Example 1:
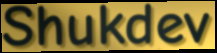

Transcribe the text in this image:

Shukdev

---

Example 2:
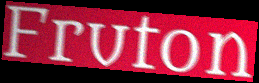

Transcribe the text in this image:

Fruton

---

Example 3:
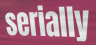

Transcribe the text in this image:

serially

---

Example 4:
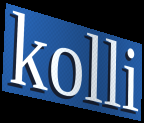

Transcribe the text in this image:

kolli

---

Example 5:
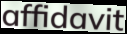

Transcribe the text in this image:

affidavit